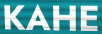
KAHE